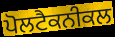
ਪੋਲਟੈਕਨੀਕਲ